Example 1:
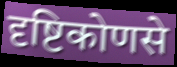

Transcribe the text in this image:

दृष्टिकोणसे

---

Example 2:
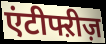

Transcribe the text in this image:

एंटीफ्ऱीज़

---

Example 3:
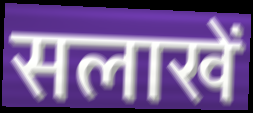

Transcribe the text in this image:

सलाखें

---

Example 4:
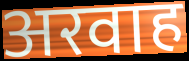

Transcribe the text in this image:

अरवाह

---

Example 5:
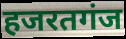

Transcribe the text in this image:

हजरतगंज